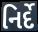
નિર્દે